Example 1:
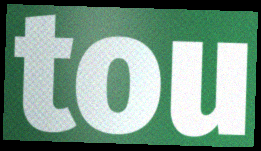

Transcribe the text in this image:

tou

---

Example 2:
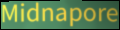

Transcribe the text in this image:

Midnapore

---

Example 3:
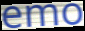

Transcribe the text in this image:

emo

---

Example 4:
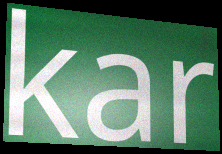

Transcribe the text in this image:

kar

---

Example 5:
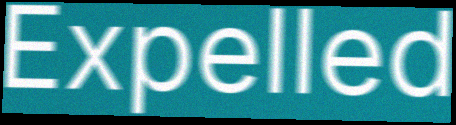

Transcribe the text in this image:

Expelled